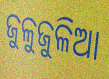
ଜୁଳୁଜୁଳିଆ